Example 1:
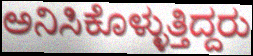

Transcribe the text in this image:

ಅನಿಸಿಕೊಳ್ಳುತ್ತಿದ್ದರು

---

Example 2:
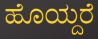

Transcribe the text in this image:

ಹೊಯ್ದರೆ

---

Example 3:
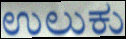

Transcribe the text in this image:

ಉಲುಕು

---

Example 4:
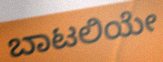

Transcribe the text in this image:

ಬಾಟಲಿಯೇ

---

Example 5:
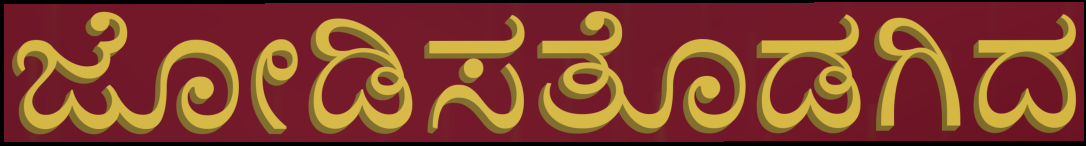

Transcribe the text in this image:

ಜೋಡಿಸತೊಡಗಿದ